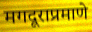
मगदूराप्रमाणे